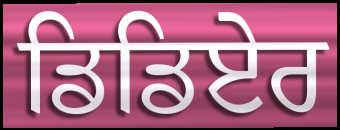
ਡਿਡਿਏਰ